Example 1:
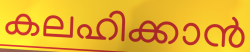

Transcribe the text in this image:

കലഹിക്കാൻ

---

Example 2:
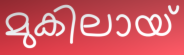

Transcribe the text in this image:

മുകിലായ്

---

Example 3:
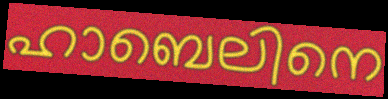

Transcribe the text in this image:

ഹാബെലിനെ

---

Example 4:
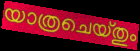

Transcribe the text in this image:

യാത്രചെയ്തും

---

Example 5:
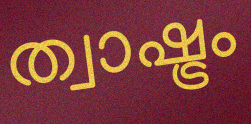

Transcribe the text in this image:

ത്വാഷ്ട്രം